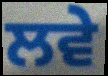
ਲਵੇ